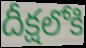
దీక్షలోకి